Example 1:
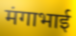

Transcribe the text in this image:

मंगाभाई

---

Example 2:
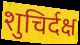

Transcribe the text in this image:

शुचिर्दक्ष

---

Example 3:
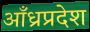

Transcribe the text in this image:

आँध्रप्रदेश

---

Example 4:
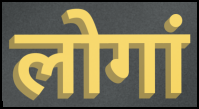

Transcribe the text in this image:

लोगां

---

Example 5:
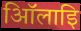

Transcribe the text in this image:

ऑिलाइि